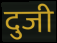
दुजी